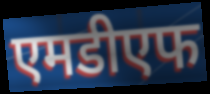
एमडीएफ